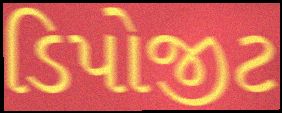
ડિપોજીટ